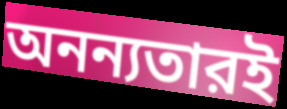
অনন্যতারই